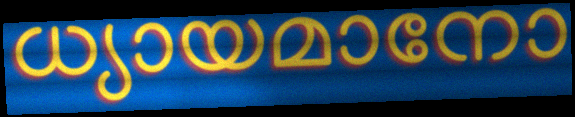
ധ്യായമാനോ